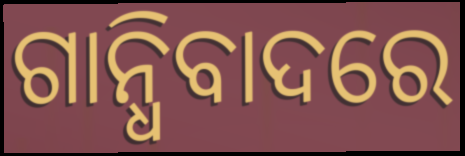
ଗାନ୍ଧିବାଦରେ